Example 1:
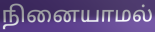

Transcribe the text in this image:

நினையாமல்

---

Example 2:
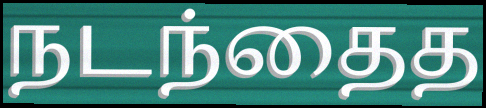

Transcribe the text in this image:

நடந்தைத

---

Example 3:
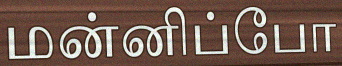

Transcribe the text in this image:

மன்னிப்போ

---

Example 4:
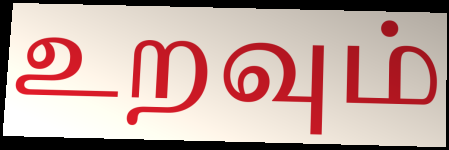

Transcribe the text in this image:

உறவும்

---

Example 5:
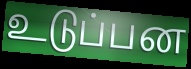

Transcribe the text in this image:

உடுப்பன